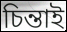
চিন্তাই